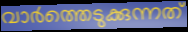
വാർത്തെടുക്കുന്നത്